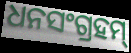
ଧନସଂଗ୍ରହମ୍